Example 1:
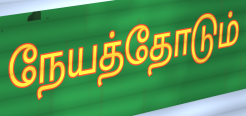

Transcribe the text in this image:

நேயத்தோடும்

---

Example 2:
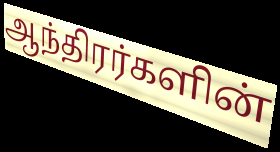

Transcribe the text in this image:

ஆந்திரர்களின்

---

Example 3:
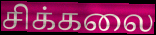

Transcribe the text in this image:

சிக்கலை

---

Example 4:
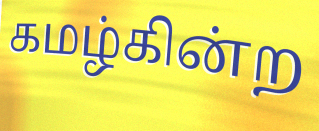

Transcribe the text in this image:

கமழ்கின்ற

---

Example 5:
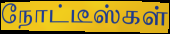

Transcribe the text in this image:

நோட்டீஸ்கள்